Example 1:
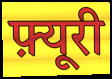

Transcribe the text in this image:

फ़्यूरी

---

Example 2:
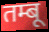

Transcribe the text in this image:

तम्‍बू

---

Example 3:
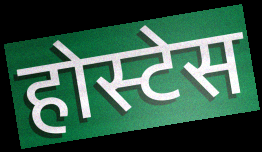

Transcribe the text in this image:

होस्टेस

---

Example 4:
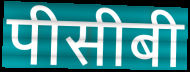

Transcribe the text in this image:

पीसीबी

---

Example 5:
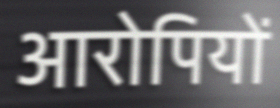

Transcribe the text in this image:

आरोपियों